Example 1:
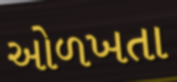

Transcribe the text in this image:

ઓળખતા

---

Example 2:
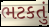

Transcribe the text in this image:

ભટકતું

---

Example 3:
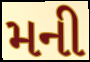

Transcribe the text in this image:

મની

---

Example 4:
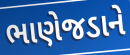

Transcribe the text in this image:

ભાણેજડાને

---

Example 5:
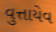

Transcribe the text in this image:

વુત્તાયેવ